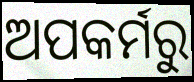
ଅପକର୍ମରୁ